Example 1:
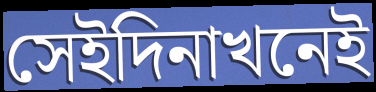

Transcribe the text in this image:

সেইদিনাখনেই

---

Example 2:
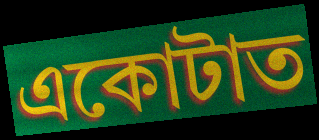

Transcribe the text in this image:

একোটাত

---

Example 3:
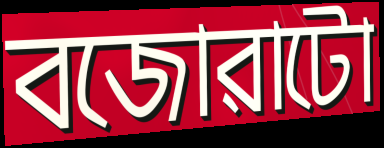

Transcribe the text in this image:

বজোৱাটো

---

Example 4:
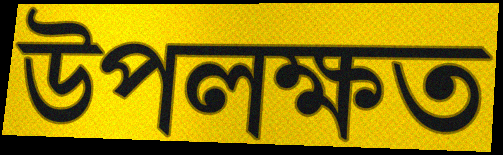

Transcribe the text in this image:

উপলক্ষত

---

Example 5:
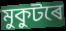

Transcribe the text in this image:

মুকুটৰে